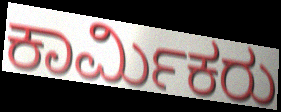
ಕಾರ್ಮಿಕರು